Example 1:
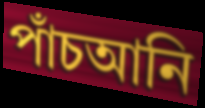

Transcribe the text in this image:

পাঁচআনি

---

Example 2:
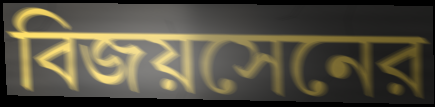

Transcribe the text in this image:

বিজয়সেনের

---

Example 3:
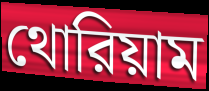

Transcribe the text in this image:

থোরিয়াম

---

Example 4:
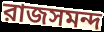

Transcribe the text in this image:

রাজসমন্দ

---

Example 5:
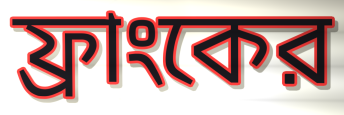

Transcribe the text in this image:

ফ্রাংকের